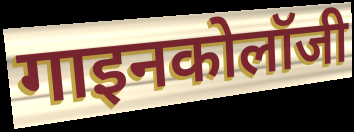
गाइनकोलॉजी